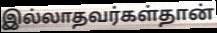
இல்லாதவர்கள்தான்